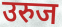
उरुज